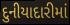
દુનીયાદારીમાં